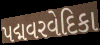
પદ્મવરવેદિકા